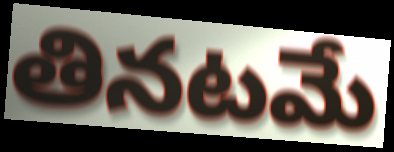
తినటమే